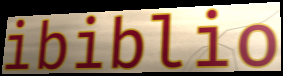
ibiblio